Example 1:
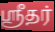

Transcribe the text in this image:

ஸ்ரீதர்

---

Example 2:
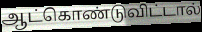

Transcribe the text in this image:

ஆட்கொண்டுவிட்டால்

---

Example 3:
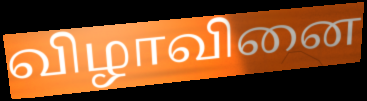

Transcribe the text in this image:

விழாவினை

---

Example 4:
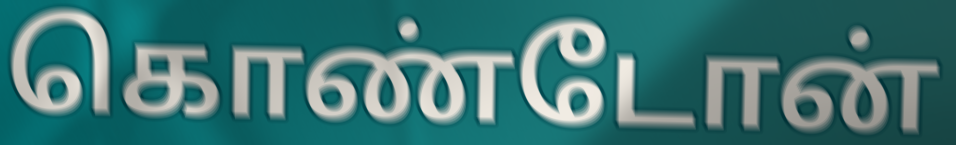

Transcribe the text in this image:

கொண்டோன்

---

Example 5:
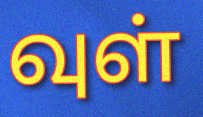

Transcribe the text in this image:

வுள்